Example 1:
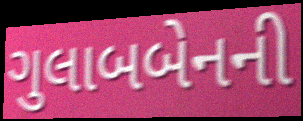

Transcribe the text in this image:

ગુલાબબેનની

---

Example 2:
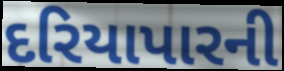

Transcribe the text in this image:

દરિયાપારની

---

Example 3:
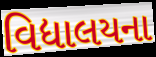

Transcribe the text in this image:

વિદ્યાલયના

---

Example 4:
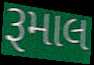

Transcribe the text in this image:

રૂમાલ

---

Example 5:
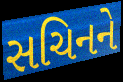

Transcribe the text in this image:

સચિનને